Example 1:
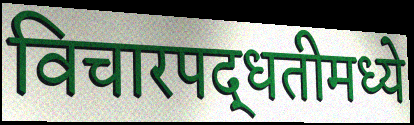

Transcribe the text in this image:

विचारपद्धतीमध्ये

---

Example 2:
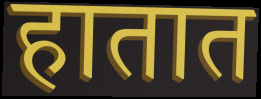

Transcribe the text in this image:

हातात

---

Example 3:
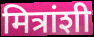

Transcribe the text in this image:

मित्रांशी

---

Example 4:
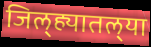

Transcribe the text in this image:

जिल्ह्यातल्या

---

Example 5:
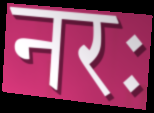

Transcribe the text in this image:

नरः